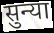
सुन्या